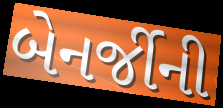
બેનર્જીની